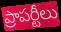
ప్రాపర్టీలు